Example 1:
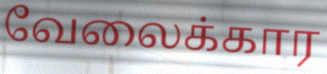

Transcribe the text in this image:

வேலைக்கார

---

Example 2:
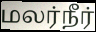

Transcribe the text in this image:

மலர்நீர்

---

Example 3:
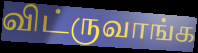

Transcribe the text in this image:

விட்ருவாங்க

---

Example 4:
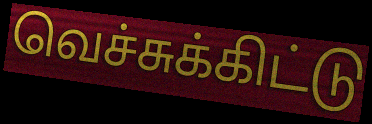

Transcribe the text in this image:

வெச்சுக்கிட்டு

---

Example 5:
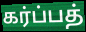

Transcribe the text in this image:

கர்ப்பத்